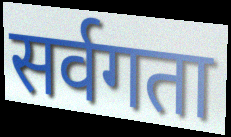
सर्वगता